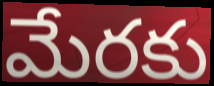
మేరకు